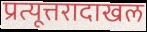
प्रत्यूत्तरादाखल